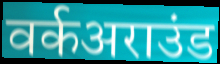
वर्कअराउंड